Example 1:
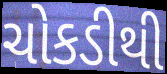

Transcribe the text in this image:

ચોકડીથી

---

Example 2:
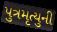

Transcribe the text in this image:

પુત્રમૃત્યુની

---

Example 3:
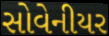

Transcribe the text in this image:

સોવેનીયર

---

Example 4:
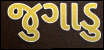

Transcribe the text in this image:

જુગાડુ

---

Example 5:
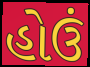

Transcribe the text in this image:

હોઉં